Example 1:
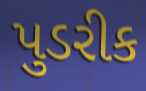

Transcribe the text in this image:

પુડરીક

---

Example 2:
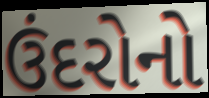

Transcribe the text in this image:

ઉંદરોનો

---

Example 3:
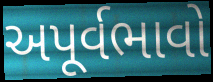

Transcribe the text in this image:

અપૂર્વભાવો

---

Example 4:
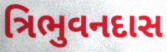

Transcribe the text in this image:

ત્રિભુવનદાસ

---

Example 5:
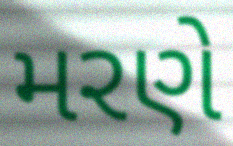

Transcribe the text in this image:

મરણે